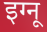
इग्‍नू